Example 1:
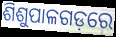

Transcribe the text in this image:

ଶିଶୁପାଳଗଡ଼ରେ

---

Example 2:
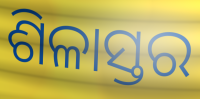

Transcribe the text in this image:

ଶିଳାସ୍ତର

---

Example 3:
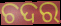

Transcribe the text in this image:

ଚଦର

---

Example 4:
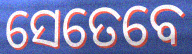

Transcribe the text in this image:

ସେତେବେ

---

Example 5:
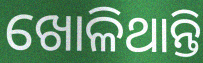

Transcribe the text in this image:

ଖୋଳିଥାନ୍ତି